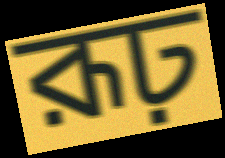
রূঢ়